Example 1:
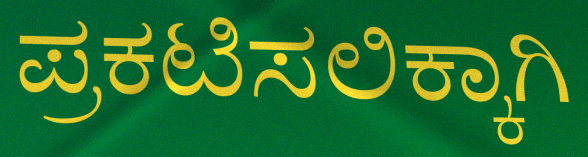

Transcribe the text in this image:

ಪ್ರಕಟಿಸಲಿಕ್ಕಾಗಿ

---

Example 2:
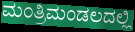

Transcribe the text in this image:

ಮಂತ್ರಿಮಂಡಲದಲ್ಲಿ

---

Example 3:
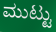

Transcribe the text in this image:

ಮುಟ್ಟು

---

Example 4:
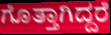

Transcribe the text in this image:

ಗೊತ್ತಾಗಿದ್ದರೆ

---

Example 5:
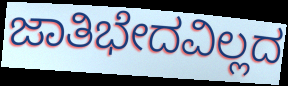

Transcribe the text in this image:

ಜಾತಿಭೇದವಿಲ್ಲದ